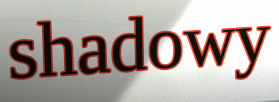
shadowy